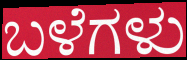
ಬಳೆಗಳು